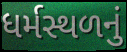
ધર્મસ્થળનું